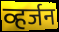
व्हर्जन